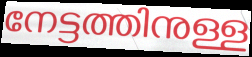
നേട്ടത്തിനുള്ള